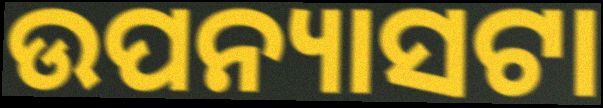
ଉପନ୍ୟାସଟା